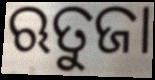
ଋତୁଜା